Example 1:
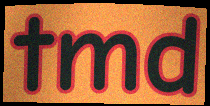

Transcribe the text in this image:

tmd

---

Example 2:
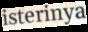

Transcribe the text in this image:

isterinya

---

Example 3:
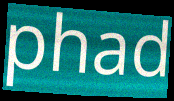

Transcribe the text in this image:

phad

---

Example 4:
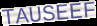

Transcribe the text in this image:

TAUSEEF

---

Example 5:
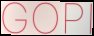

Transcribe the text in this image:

GOPI